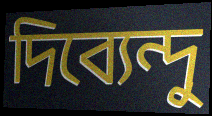
দিব্যেন্দু